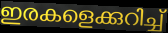
ഇരകളെക്കുറിച്ച്